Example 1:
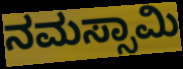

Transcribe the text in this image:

ನಮಸ್ಸಾಮಿ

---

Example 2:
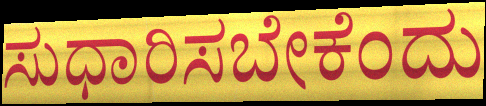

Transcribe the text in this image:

ಸುಧಾರಿಸಬೇಕೆಂದು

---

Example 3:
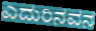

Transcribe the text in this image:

ಎದುರಿನವನ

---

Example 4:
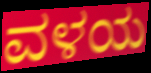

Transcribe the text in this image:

ವಳಯ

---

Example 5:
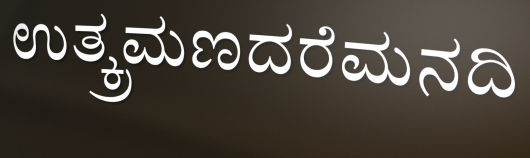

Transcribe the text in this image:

ಉತ್ಕ್ರಮಣದರೆಮನದಿ